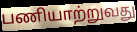
பணியாற்றுவது